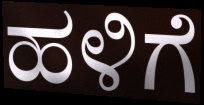
ಹಳಿಗೆ